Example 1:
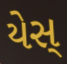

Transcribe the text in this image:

યેસ્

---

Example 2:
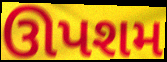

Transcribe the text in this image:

ઊપશમ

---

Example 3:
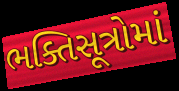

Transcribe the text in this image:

ભક્તિસૂત્રોમાં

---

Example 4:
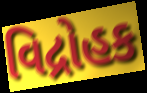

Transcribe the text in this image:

વિદ્રોહક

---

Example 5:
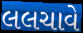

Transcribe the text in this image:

લલચાવે